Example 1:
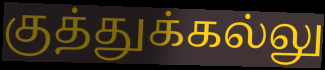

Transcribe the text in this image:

குத்துக்கல்லு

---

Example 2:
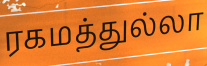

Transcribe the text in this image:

ரகமத்துல்லா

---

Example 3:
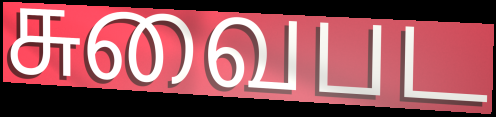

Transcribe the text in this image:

சுவைபட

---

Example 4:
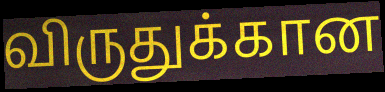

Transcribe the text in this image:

விருதுக்கான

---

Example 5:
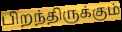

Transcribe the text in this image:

பிறந்திருக்கும்